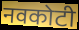
नवकोटी